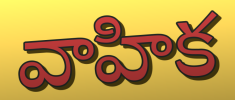
వాహిక